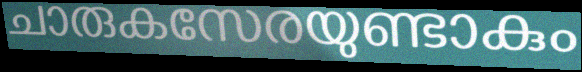
ചാരുകസേരയുണ്ടാകും